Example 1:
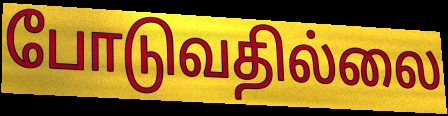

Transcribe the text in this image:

போடுவதில்லை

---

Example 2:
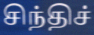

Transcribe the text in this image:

சிந்திச்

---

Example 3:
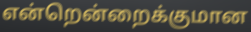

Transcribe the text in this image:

என்றென்றைக்குமான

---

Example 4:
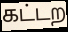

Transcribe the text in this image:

கட்டற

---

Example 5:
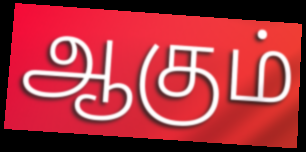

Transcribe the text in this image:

ஆகும்